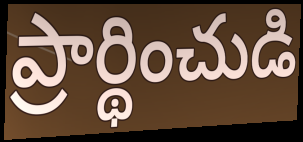
ప్రార్థించుడి